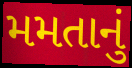
મમતાનું